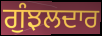
ਗੁੰਝਲਦਾਰ